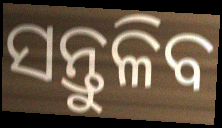
ସନ୍ତୁଳିବ